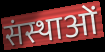
संस्थाओं